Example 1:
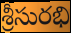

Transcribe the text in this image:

శ్రీసురభి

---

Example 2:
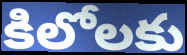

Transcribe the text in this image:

కిలోలకు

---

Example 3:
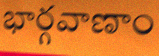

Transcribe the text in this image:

భార్గవాణాం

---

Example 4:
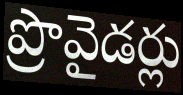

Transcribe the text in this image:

ప్రొవైడర్లు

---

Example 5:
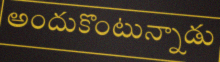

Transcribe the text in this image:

అందుకొంటున్నాడు